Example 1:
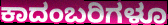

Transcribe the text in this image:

ಕಾದಂಬರಿಗಳೂ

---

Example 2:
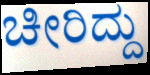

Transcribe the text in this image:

ಚೀರಿದ್ದು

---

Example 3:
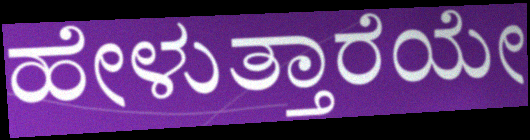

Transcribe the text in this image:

ಹೇಳುತ್ತಾರೆಯೇ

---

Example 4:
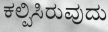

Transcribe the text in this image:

ಕಲ್ಪಿಸಿರುವುದು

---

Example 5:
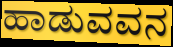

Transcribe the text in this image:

ಹಾಡುವವನ